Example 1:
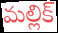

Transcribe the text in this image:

మల్లిక్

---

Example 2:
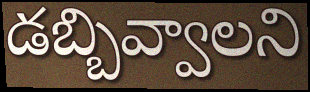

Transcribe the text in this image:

డబ్బివ్వాలని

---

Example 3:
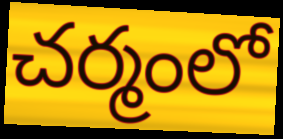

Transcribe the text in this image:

చర్మంలో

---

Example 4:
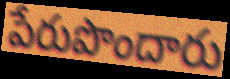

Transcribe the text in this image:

పేరుపొందారు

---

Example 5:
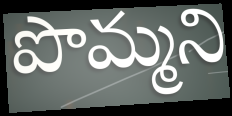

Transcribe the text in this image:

పొమ్మని